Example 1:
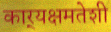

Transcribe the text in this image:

कार्यक्षमतेशी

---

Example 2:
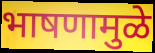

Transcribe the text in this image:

भाषणामुळे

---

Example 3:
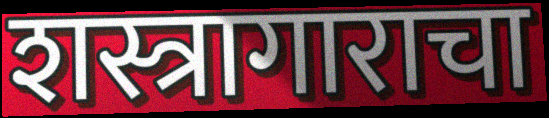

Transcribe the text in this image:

शस्त्रागाराचा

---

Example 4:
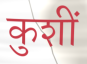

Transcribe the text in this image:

कुशीं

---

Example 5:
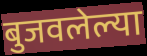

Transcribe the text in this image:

बुजवलेल्या